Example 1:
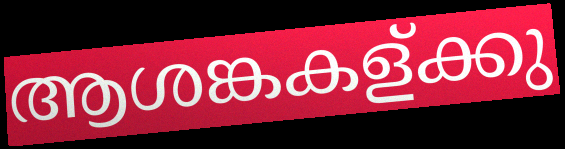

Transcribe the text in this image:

ആശങ്കകള്ക്കു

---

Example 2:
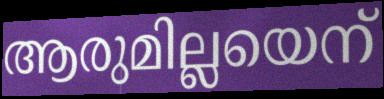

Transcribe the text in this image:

ആരുമില്ലയെന്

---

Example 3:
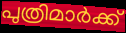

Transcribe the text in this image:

പുത്രിമാർക്ക്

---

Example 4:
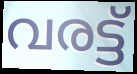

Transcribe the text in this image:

വരട്ട്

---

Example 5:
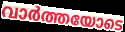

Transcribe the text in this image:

വാർത്തയോടെ